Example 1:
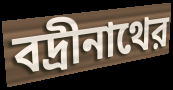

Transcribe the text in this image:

বদ্রীনাথের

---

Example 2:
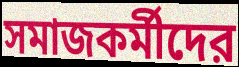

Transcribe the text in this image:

সমাজকর্মীদের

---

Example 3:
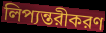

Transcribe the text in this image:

লিপ্যন্তরীকরণ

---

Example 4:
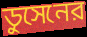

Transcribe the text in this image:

ডুসেনের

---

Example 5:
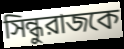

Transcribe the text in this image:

সিন্ধুরাজকে